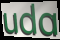
uda